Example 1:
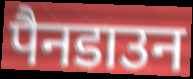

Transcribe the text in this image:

पैनडाउन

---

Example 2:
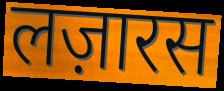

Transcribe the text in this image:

लज़ारस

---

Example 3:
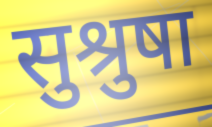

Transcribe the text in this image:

सुश्रुषा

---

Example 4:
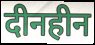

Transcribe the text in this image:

दीनहीन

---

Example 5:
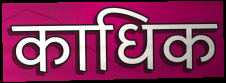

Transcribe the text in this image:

काधिक